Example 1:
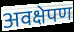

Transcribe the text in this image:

अवक्षेपण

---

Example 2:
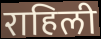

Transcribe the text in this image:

राहिली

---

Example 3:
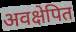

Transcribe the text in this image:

अवक्षेपित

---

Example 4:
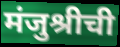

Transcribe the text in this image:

मंजुश्रीची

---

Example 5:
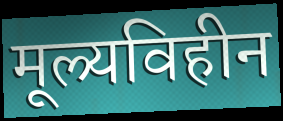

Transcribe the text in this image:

मूल्यविहीन